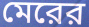
মেরের